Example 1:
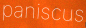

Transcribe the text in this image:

paniscus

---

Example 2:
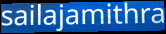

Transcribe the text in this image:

sailajamithra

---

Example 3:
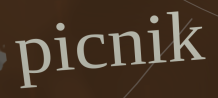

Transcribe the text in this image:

picnik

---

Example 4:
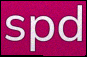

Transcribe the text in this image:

spd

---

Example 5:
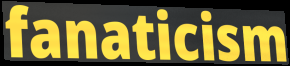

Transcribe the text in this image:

fanaticism